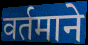
वर्तमाने